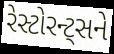
રેસ્ટોરન્ટ્સને